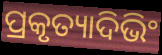
ପ୍ରକୃତ୍ୟାଦିଭିଂ